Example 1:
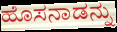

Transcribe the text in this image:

ಹೊಸನಾಡನ್ನು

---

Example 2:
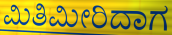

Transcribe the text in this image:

ಮಿತಿಮೀರಿದಾಗ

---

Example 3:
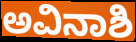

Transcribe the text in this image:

ಅವಿನಾಶಿ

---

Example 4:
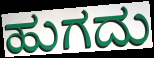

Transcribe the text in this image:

ಹುಗದು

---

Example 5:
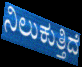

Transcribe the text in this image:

ನಿಲುಕುತ್ತಿದೆ